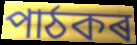
পাঠকৰ